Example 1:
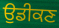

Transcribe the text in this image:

ਉਡੀਕਣ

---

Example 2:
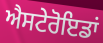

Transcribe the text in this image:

ਐਸਟੇਰੋਇਡਾਂ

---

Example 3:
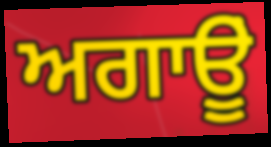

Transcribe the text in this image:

ਅਗਾਊੂਂ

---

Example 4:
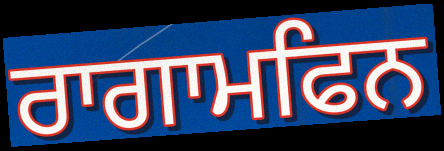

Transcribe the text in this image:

ਰਾਗਾਮਫਿਨ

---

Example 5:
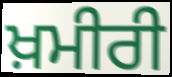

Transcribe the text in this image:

ਖ਼ਮੀਰੀ